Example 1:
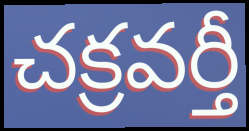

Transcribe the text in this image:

చక్రవర్తీ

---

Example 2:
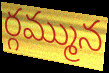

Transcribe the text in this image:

ర్గమ్మున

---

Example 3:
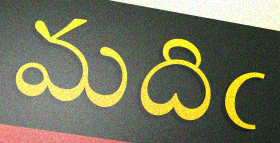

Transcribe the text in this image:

మదిఁ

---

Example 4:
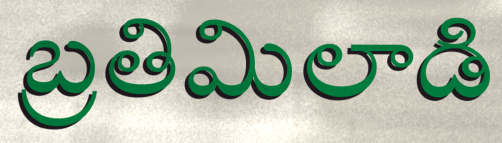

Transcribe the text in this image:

బ్రతిమిలాడి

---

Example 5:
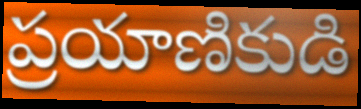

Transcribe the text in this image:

ప్రయాణికుడి